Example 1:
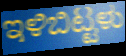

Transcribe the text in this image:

ಇಳಿಬಿಟ್ಟಳು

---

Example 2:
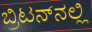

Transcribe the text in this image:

ಬ್ರಿಟನ್‌ನಲ್ಲಿ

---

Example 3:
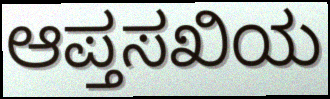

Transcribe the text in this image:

ಆಪ್ತಸಖಿಯ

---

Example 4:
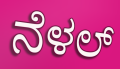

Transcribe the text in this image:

ನೆಳಲ್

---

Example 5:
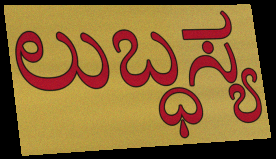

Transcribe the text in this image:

ಲುಬ್ಧಸ್ಯ